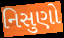
નિસુણો